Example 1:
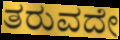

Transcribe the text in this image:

ತರುವದೇ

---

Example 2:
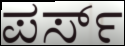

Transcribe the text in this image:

ಪರ್ಸ್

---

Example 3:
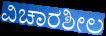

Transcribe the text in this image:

ವಿಚಾರಶೀಲ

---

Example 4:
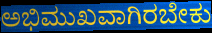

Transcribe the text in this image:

ಅಭಿಮುಖವಾಗಿರಬೇಕು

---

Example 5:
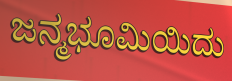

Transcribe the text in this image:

ಜನ್ಮಭೂಮಿಯಿದು